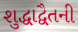
શુદ્ધાદ્વૈતની